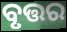
ବୃତ୍ତର